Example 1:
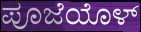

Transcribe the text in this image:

ಪೂಜೆಯೊಳ್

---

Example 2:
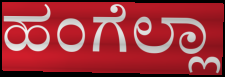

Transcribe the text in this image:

ಹಂಗೆಲ್ಲಾ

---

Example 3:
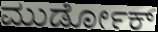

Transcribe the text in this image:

ಮುರ್ಡೋಕ್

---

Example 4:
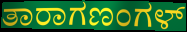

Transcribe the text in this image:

ತಾರಾಗಣಂಗಳ್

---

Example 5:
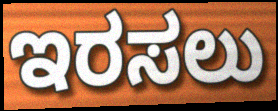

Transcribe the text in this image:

ಇರಸಲು